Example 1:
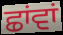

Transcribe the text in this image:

ਛਾਂਵਾਂ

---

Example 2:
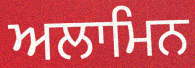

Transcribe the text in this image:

ਅਲਾਮਿਨ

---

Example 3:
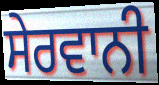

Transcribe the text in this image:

ਸੇਰਵਾਨੀ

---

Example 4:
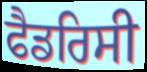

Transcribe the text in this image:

ਫੈਡਰਿਸੀ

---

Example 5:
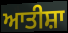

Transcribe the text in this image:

ਆਤੀਸ਼ਾ